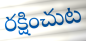
రక్షించుట